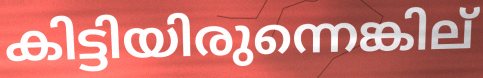
കിട്ടിയിരുന്നെങ്കില്